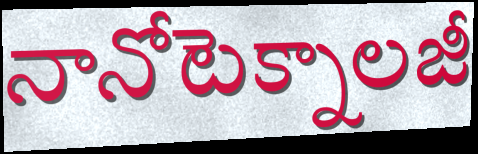
నానోటెక్నాలజీ